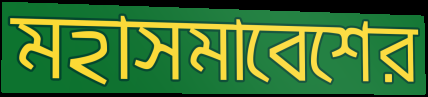
মহাসমাবেশের